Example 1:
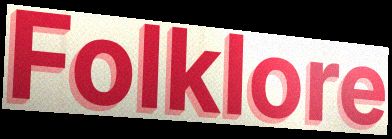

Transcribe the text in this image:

Folklore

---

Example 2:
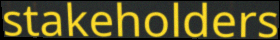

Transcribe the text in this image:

stakeholders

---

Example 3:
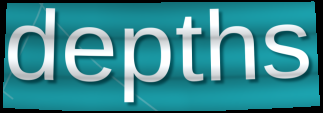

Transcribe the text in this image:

depths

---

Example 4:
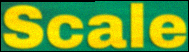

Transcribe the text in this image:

Scale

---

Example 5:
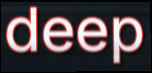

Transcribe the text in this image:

deep